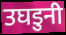
उघडुनी